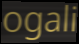
ogali